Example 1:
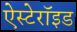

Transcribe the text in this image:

ऐस्टेरॉइड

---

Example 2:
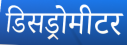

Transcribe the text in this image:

डिसड्रोमीटर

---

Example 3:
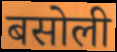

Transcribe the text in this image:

बसोली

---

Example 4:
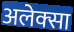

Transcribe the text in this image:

अलेक्‍सा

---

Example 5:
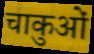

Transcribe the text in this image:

चाकुओं